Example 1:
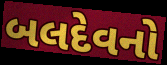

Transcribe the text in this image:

બલદેવનો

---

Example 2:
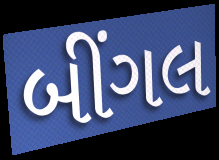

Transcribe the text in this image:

બીંગલ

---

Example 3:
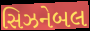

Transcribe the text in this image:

સિઝનેબલ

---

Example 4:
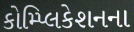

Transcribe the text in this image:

કોમ્પ્લિકેશનના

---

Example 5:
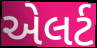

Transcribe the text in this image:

એલર્ટ